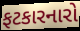
ફટકારનારો